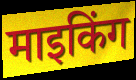
माइकिंग